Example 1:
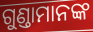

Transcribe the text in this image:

ଗୁଣ୍ଡାମାନଙ୍କ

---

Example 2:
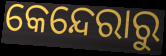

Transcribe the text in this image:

କେନ୍ଦେରାରୁ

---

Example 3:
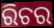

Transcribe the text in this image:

ରିଚର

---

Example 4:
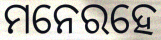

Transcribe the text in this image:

ମନେରହେ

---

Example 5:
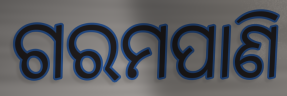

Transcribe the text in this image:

ଗରମପାଣି